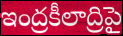
ఇంద్రకీలాద్రిపై